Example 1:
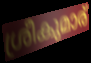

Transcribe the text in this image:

ശ്രീകുമാര്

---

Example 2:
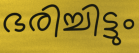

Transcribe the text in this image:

ഭരിച്ചിട്ടും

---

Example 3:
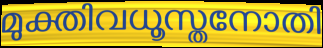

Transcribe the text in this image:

മുക്തിവധൂസ്തനോതി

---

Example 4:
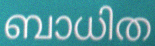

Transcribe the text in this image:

ബാധിത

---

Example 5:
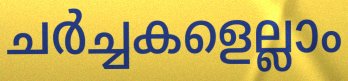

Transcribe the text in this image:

ചർച്ചകളെല്ലാം